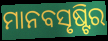
ମାନବସୃଷ୍ଟିର